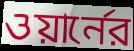
ওয়ার্নের